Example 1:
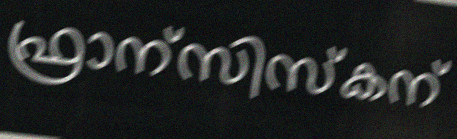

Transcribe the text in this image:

ഫ്രാന്സിസ്കന്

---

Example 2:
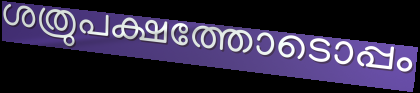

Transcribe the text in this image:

ശത്രുപക്ഷത്തോടൊപ്പം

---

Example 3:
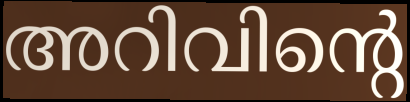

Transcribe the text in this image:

അറിവിന്റെ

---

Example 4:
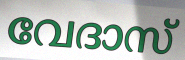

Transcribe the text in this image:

വേദാസ്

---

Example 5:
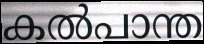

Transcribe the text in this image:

കൽപാന്ത